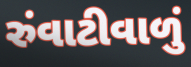
રુંવાટીવાળું